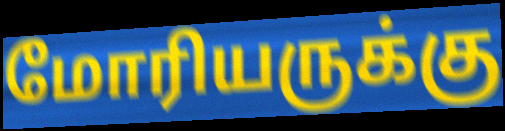
மோரியருக்கு